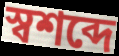
স্বশব্দে